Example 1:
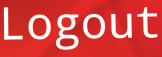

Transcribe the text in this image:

Logout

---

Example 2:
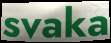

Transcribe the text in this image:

svaka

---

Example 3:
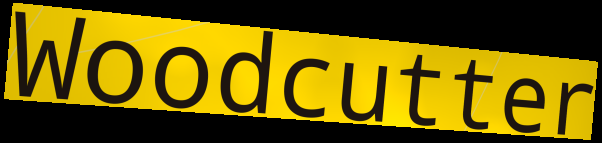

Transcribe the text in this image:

Woodcutter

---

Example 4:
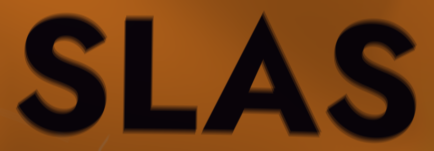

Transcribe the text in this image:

SLAS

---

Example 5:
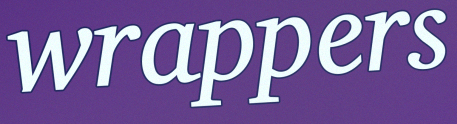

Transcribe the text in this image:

wrappers